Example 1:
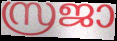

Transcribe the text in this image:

സ്രജാ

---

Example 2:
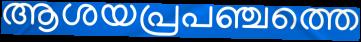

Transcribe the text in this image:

ആശയപ്രപഞ്ചത്തെ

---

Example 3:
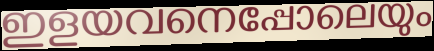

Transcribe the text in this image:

ഇളയവനെപ്പോലെയും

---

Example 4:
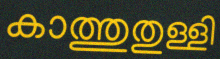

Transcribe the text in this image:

കാത്തുതുള്ളി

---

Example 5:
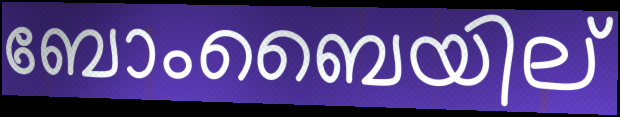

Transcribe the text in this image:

ബോംബൈയില്